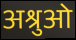
अश्रुओ